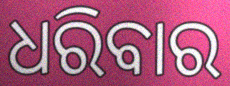
ଧରିବାର